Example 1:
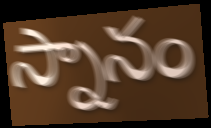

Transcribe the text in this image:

స్నానం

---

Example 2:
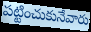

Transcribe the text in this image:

పట్టించుకునేవారు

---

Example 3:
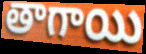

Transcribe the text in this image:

తాగాయి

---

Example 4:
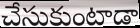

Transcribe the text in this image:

చేసుకుంటాడా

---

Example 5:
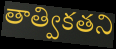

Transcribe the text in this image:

తాత్వికతని